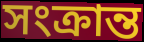
সংক্রান্ত